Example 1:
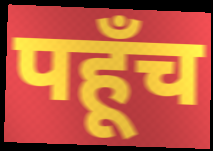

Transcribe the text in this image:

पहूँच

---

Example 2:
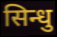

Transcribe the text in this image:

सिन्धु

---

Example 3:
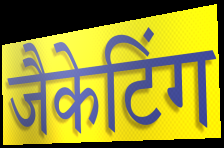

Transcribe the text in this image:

जैकेटिंग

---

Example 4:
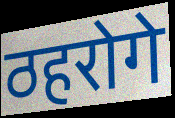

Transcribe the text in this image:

ठहरोगे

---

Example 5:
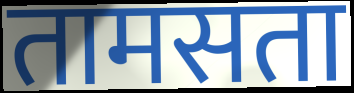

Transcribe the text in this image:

तामसता